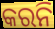
କରନି